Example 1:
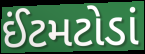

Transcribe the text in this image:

ઈંટમટોડાં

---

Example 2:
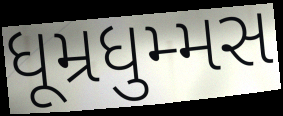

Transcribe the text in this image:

ધૂમ્રધુમ્મસ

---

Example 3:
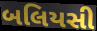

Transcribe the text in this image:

બલિયસી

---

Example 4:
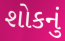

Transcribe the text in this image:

શોકનું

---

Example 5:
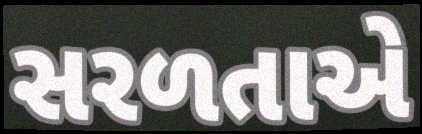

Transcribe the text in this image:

સરળતાએ